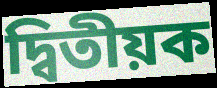
দ্বিতীয়ক